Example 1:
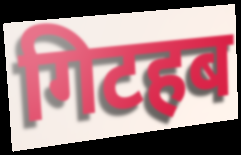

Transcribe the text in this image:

गिटहब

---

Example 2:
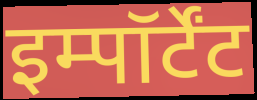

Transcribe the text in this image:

इम्पॉर्टेंट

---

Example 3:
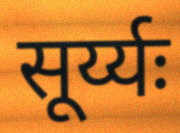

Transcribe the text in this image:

सूर्य्यः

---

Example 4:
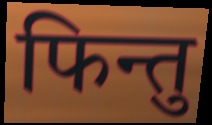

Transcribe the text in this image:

फिन्तु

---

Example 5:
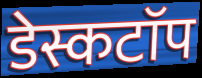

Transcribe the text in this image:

डेस्‍कटॉप